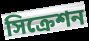
সিক্রেশন